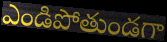
ఎండిపోతుండగా